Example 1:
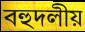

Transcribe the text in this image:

বহুদলীয়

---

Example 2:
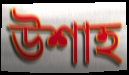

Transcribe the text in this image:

উশাহ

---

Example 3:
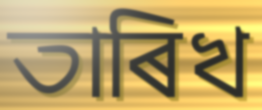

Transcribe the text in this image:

তাৰিখ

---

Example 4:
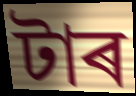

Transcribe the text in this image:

টাৰ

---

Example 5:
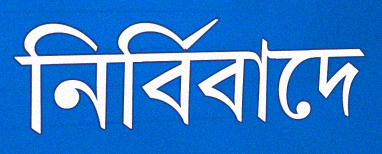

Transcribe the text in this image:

নিৰ্বিবাদে